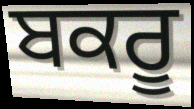
ਬਕਰੂ